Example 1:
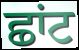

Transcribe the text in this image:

ਛਾਂਟ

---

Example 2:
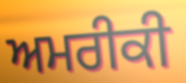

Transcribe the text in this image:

ਅਮਰੀਕੀ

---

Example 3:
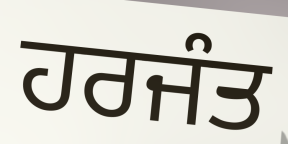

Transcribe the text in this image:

ਹਰਜੰਤ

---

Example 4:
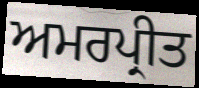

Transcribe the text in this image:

ਅਮਰਪ੍ਰੀਤ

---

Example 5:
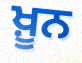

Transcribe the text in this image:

ਖ਼ੂਨ